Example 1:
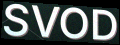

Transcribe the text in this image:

SVOD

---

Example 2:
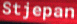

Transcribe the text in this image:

Stjepan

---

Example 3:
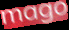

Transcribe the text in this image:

mago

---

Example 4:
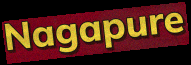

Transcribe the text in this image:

Nagapure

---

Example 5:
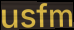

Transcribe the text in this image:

usfm